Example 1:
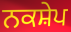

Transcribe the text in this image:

ਨਕਸ਼ੇਪ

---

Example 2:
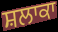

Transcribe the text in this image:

ਸ਼ਲਾਕਾ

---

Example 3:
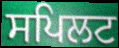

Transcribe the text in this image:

ਸਪਿਲਟ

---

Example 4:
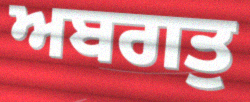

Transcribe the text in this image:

ਅਬਗਤੁ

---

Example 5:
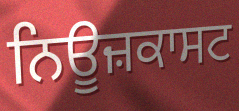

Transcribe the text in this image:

ਨਿਊਜ਼ਕਾਸਟ